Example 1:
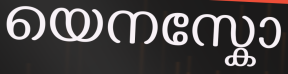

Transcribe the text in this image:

യെനസ്കോ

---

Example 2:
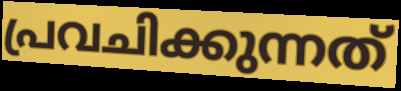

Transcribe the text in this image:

പ്രവചിക്കുന്നത്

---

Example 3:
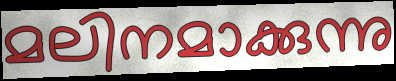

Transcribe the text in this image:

മലിനമാക്കുന്നു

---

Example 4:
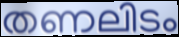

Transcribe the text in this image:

തണലിടം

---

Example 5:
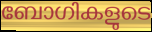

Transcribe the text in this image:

ബോഗികളുടെ